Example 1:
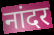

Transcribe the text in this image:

नांदर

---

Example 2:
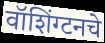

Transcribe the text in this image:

वॉशिंग्टनचे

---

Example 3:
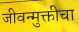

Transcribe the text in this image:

जीवन्मुक्तीचा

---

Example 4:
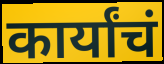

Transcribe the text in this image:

कार्यांचं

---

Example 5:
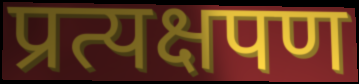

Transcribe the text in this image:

प्रत्यक्षपण